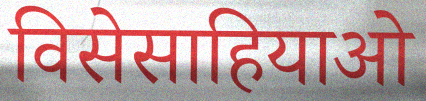
विसेसाहियाओ